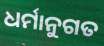
ଧର୍ମାନୁଗତ